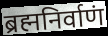
ब्रह्मनिर्वाणं